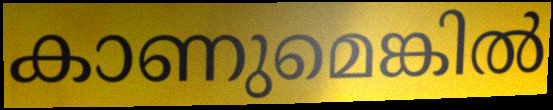
കാണുമെങ്കിൽ